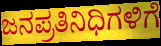
ಜನಪ್ರತಿನಿಧಿಗಳಿಗೆ